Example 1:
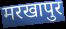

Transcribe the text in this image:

मरखापुर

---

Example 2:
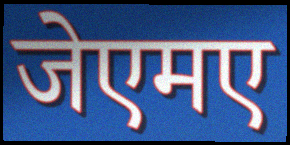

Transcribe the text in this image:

जेएमए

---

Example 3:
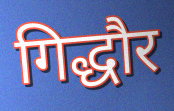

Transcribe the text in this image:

गिद्धौर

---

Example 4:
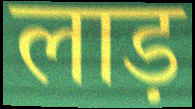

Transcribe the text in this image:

लाड़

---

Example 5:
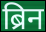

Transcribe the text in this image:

ब्रिन